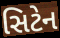
સિટેન